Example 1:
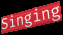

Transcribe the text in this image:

Singing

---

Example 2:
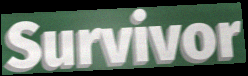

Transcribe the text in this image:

Survivor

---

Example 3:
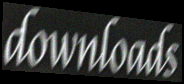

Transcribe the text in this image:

downloads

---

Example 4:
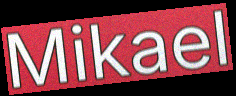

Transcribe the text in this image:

Mikael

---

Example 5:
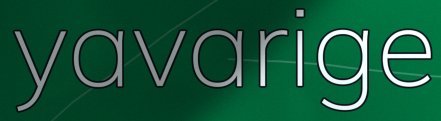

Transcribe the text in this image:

yavarige